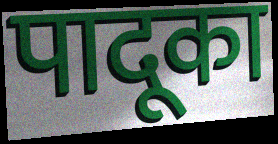
पादूका